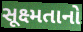
સૂક્ષ્મતાનો